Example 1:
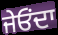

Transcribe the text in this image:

ਜੇਓੰਦਾ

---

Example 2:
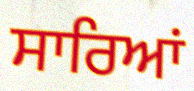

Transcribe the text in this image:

ਸਾਰਿਆਂ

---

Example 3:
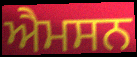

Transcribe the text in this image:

ਐਮਸਨ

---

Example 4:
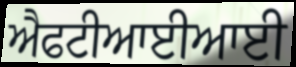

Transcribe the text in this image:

ਐਫਟੀਆਈਆਈ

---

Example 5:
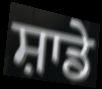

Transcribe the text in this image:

ਸ਼ਾਡੇ